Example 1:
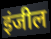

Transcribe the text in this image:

इंजील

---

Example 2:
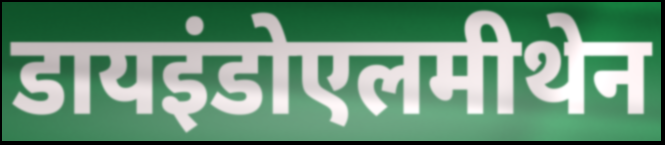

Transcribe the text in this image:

डायइंडोएलमीथेन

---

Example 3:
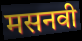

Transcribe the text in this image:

मसनवी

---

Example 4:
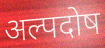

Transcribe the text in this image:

अल्पदोष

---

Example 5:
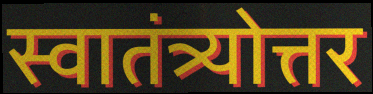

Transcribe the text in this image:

स्वातंत्र्योत्तर